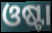
ଓଷ୍ଟା